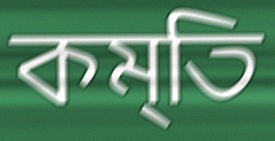
কম্‌তি